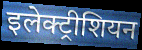
इलेक्‍ट्रीशियन